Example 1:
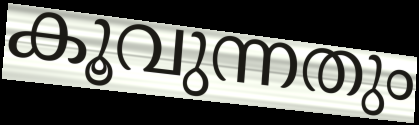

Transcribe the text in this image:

കൂവുന്നതും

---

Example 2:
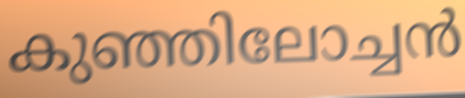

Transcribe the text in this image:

കുഞ്ഞിലോച്ചൻ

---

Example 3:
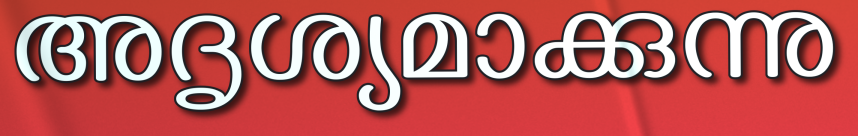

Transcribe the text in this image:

അദൃശ്യമാക്കുന്നു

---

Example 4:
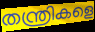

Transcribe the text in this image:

തന്ത്രികളെ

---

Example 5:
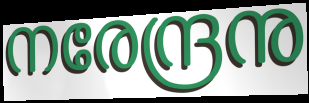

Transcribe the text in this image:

നരേന്ദ്രനു